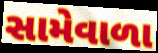
સામેવાળા